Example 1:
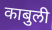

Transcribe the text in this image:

काबुली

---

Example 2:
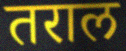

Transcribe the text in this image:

तराल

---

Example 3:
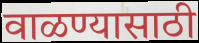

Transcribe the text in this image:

वाळण्यासाठी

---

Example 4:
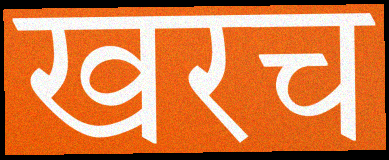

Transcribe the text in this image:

खरच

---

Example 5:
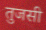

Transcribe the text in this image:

तुजसी